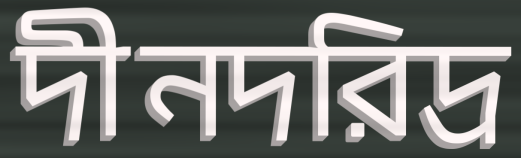
দীনদরিদ্র